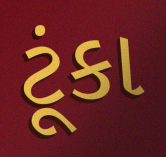
ટૂંકા